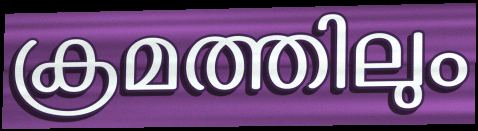
ക്രമത്തിലും